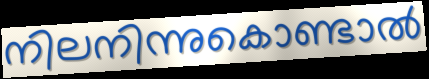
നിലനിന്നുകൊണ്ടാൽ